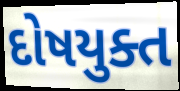
દોષયુક્ત